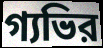
গ্যভির